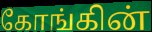
கோங்கின்